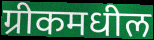
ग्रीकमधील